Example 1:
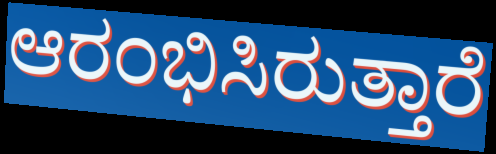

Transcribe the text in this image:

ಆರಂಭಿಸಿರುತ್ತಾರೆ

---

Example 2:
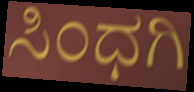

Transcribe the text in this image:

ಸಿಂಧಗಿ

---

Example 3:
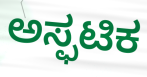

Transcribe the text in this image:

ಅಸ್ಫಟಿಕ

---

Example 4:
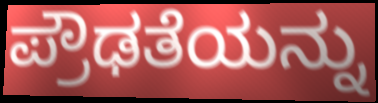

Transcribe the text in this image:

ಪ್ರೌಢತೆಯನ್ನು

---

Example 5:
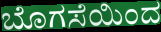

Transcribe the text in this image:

ಬೊಗಸೆಯಿಂದ